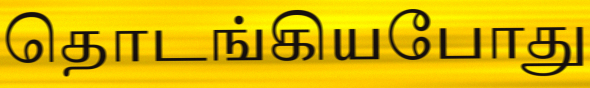
தொடங்கியபோது